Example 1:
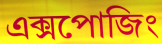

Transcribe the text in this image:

এক্সপোজিং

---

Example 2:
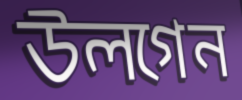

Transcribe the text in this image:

উলগেন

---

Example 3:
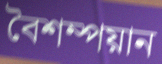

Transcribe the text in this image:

বৈশম্পয়ান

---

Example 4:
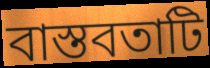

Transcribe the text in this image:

বাস্তবতাটি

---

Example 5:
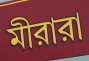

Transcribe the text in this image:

মীরারা